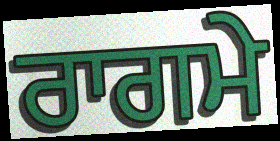
ਰਾਗਮੇ